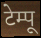
टेम्पू